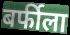
बर्फीला